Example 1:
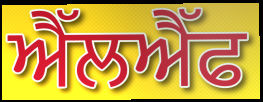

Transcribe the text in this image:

ਐੱਲਐੱਫ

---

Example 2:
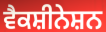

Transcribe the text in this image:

ਵੈਕਸ਼ੀਨੇਸ਼ਨ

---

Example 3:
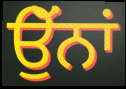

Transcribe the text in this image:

ਉਂੱਨਾਂ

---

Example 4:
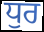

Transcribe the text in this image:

ਧੁਰ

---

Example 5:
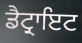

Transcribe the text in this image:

ਡੈਟ੍ਰਾਇਟ